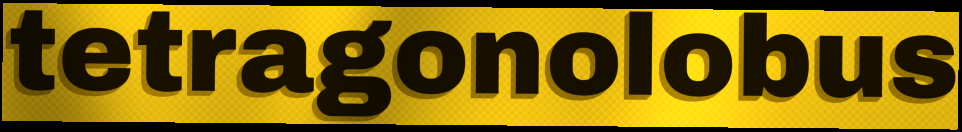
tetragonolobus